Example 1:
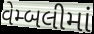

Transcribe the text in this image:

વેમ્બલીમાં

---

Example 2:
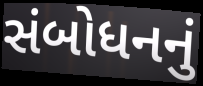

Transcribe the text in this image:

સંબોધનનું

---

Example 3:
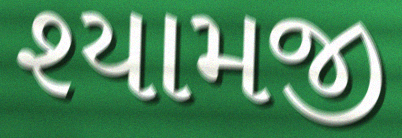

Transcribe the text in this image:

શ્યામજી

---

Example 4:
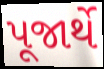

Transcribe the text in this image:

પૂજાર્થે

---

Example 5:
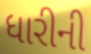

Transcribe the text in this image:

ધારીની